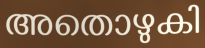
അതൊഴുകി